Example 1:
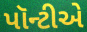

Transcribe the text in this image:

પૉન્ટીએ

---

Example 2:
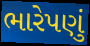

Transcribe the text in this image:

ભારેપણું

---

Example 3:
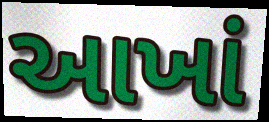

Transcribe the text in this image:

આખાં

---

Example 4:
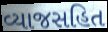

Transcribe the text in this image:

વ્યાજસહિત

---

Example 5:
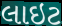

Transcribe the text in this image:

લાઇટ